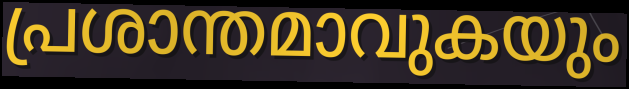
പ്രശാന്തമാവുകയും